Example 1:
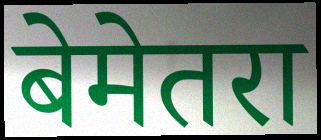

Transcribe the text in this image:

बेमेतरा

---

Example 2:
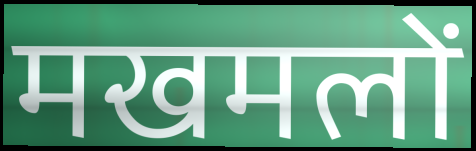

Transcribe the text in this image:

मखमलों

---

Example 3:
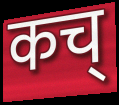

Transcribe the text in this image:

कच्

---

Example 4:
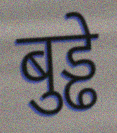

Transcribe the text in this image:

बुड्ढे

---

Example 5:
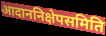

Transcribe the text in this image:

आदाननिक्षेपसमिति